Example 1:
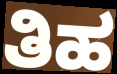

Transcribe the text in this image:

ತಿಹ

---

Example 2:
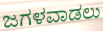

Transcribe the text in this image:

ಜಗಳವಾಡಲು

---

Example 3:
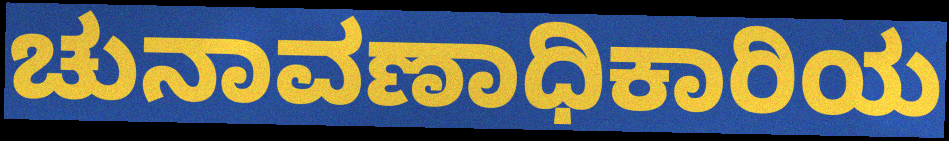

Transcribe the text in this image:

ಚುನಾವಣಾಧಿಕಾರಿಯ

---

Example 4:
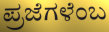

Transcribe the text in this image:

ಪ್ರಜೆಗಳೆಂಬ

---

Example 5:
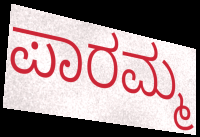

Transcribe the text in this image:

ಪಾರಮ್ಮ